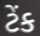
ટેંક